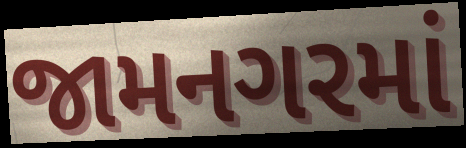
જામનગરમાં